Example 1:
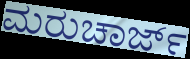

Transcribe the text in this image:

ಮರುಚಾರ್ಜ್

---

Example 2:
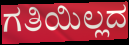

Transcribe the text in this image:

ಗತಿಯಿಲ್ಲದ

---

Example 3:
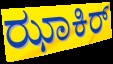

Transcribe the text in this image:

ಝಾಕಿರ್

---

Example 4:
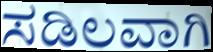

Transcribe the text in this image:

ಸಡಿಲವಾಗಿ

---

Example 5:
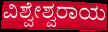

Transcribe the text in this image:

ವಿಶ್ವೇಶ್ವರಾಯ